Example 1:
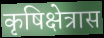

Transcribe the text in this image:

कृषिक्षेत्रास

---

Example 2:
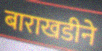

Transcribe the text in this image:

बाराखडीने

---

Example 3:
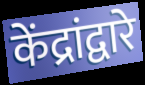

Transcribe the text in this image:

केंद्रांद्वारे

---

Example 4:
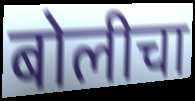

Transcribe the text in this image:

बोलीचा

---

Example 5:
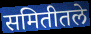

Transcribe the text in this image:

समितीतले